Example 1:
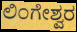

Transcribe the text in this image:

ಲಿಂಗೇಶ್ವರ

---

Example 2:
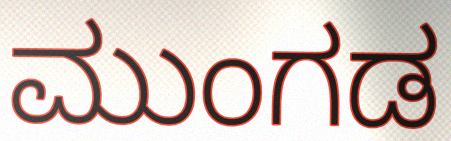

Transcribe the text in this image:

ಮುಂಗಡ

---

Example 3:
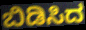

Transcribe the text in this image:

ಬಿಡಿಸಿದ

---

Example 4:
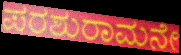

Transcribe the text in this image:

ಪರಶುರಾಮನೇ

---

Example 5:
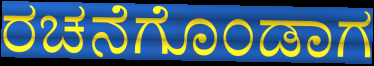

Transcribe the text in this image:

ರಚನೆಗೊಂಡಾಗ